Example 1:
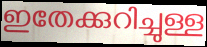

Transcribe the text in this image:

ഇതേക്കുറിച്ചുള്ള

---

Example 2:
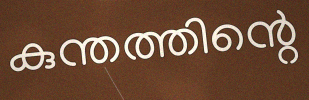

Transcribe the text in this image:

കുന്തത്തിന്റെ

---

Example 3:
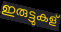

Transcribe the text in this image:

ഇരുട്ടുകള്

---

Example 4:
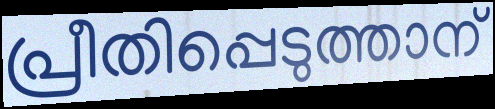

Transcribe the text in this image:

പ്രീതിപ്പെടുത്താന്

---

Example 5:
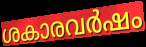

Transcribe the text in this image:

ശകാരവർഷം